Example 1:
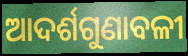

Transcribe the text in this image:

ଆଦର୍ଶଗୁଣାବଳୀ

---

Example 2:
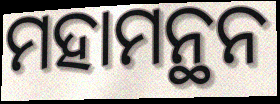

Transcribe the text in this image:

ମହାମନ୍ଥନ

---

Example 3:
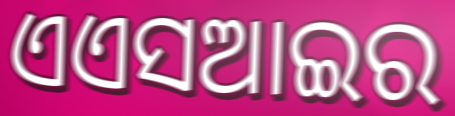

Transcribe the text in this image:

ଏଏସଆଇର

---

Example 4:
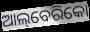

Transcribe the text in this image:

ଆଲ୍‌ବେରିକୋ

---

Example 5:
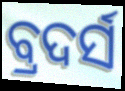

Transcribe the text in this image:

ବ୍ରଦର୍ସ